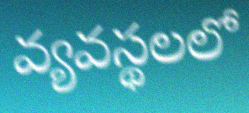
వ్యవస్థలలో